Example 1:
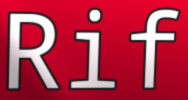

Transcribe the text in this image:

Rif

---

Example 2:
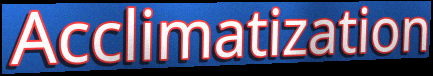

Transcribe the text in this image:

Acclimatization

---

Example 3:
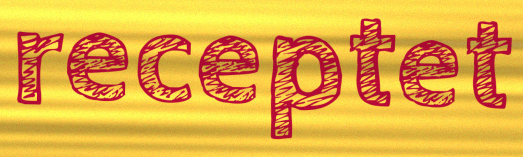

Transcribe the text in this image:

receptet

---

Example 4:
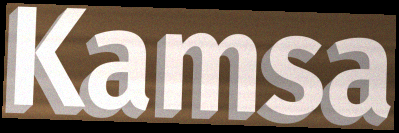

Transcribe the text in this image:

Kamsa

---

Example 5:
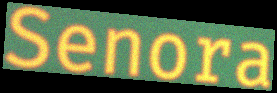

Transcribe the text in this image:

Senora